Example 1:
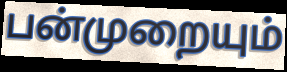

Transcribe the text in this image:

பன்முறையும்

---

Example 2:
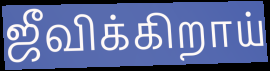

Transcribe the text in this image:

ஜீவிக்கிறாய்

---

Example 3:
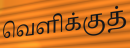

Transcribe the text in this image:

வெளிக்குத்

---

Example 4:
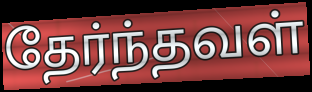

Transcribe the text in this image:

தேர்ந்தவள்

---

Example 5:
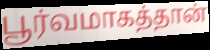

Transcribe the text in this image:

பூர்வமாகத்தான்